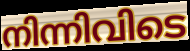
നിന്നിവിടെ